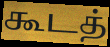
கூடத்